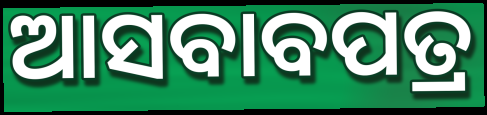
ଆସବାବପତ୍ର